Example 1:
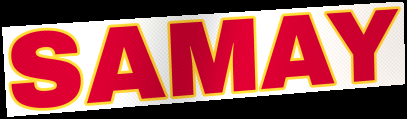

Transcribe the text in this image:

SAMAY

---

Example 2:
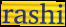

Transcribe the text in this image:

rashi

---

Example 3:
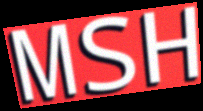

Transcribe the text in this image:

MSH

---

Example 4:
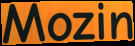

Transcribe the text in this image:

Mozin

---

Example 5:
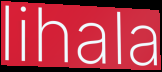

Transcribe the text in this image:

lihala